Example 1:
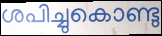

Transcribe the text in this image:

ശപിച്ചുകൊണ്ടു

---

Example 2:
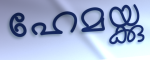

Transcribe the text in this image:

ഹേമയ്ക്കു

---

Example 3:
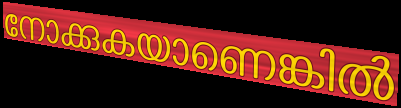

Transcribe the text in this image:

നോക്കുകയാണെങ്കിൽ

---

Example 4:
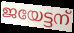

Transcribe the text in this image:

ജയേട്ടന്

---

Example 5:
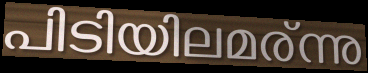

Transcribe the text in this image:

പിടിയിലമര്ന്നു